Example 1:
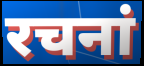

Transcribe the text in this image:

रचनां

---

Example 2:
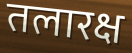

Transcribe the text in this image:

तलारक्ष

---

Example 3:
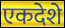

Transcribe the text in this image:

एकदेशे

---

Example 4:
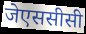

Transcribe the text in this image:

जेएससीसी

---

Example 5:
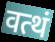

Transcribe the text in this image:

वत्थं